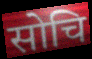
सोचि